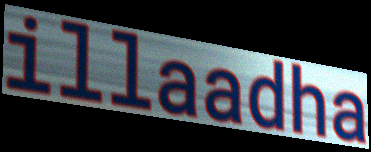
illaadha